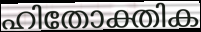
ഹിതോക്തിക